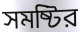
সমষ্টির